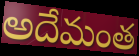
అదేమంత